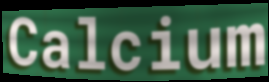
Calcium